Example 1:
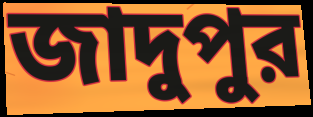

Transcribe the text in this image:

জাদুপুর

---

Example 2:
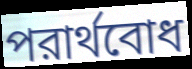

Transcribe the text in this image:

পরার্থবোধ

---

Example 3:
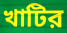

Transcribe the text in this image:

খাটির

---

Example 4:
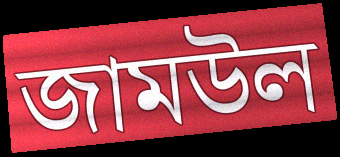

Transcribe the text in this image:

জামউল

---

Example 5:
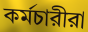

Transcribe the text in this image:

কর্মচারীরা